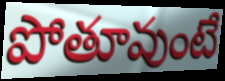
పోతూవుంటే